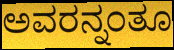
ಅವರನ್ನಂತೂ